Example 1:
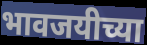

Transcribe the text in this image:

भावजयीच्या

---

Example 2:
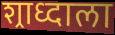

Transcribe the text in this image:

श्राध्दाला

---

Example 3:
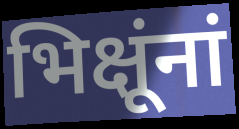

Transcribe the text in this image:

भिक्षूंनां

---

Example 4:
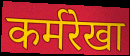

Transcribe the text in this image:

कर्मरेखा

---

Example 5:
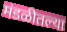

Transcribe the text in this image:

मंडळीतल्या